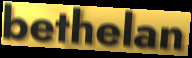
bethelan